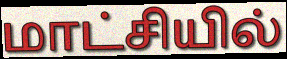
மாட்சியில்